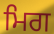
ਮਿਗ